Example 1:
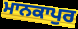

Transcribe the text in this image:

ਮਾਨਕਾਪੁਰ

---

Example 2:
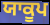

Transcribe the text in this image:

ਯਾਕੂਪ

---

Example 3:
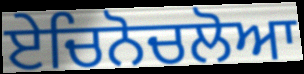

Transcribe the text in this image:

ਏਚਿਨੋਚਲੋਆ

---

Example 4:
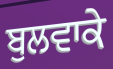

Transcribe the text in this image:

ਬੁਲਵਾਕੇ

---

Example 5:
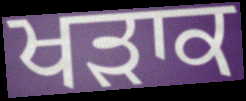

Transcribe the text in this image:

ਖੜਾਕ